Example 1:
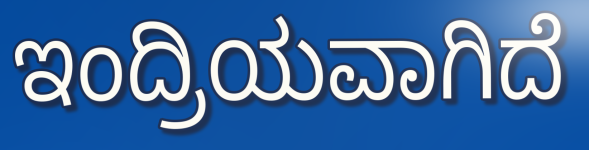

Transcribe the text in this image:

ಇಂದ್ರಿಯವಾಗಿದೆ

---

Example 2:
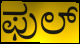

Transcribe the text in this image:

ಫುಲ್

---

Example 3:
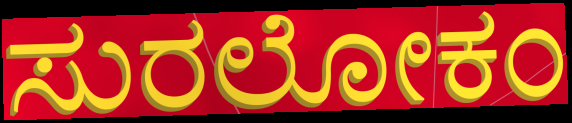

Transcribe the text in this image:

ಸುರಲೋಕಂ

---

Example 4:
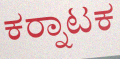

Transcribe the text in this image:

ಕರ‍್ನಾಟಕ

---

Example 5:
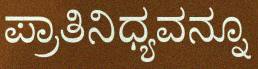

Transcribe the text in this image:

ಪ್ರಾತಿನಿಧ್ಯವನ್ನೂ